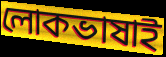
লোকভাষাই